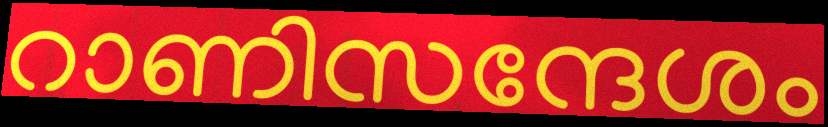
റാണിസന്ദേശം